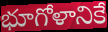
భూగోళానికే